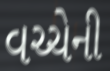
વચ્ચેની